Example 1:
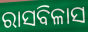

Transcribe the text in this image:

ରାସବିଳାସ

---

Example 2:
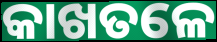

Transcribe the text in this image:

କାଖତଳେ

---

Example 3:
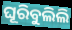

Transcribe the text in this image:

ଘୂରିବୁଲିଲି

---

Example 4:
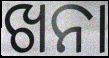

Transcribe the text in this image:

ଖନା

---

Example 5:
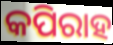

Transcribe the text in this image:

କପିରାହ